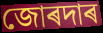
জোৰদাৰ